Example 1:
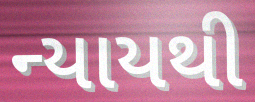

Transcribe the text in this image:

ન્યાયથી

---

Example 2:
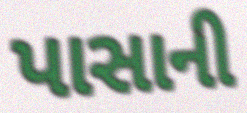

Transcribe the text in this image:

પાસાની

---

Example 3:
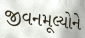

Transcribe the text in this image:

જીવનમૂલ્યોને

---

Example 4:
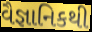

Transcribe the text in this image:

વૈજ્ઞાનિકથી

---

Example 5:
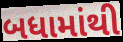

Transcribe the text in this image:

બધામાંથી